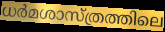
ധർമശാസ്ത്രത്തിലെ